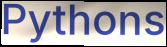
Pythons